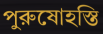
পুরুষোহস্তি